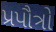
પ્રપૌત્રો